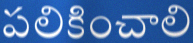
పలికించాలి